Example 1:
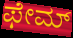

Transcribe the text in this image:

ಫೇಮ್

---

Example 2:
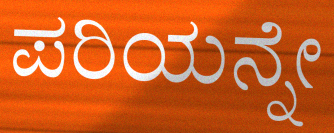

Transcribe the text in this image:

ಪರಿಯನ್ನೇ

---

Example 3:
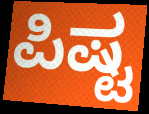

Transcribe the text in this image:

ಪಿಷ್ಟ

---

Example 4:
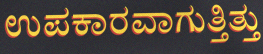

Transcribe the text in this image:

ಉಪಕಾರವಾಗುತ್ತಿತ್ತು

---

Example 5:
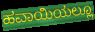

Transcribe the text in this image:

ಹವಾಯಿಯಲ್ಲೂ